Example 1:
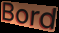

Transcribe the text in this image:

Bord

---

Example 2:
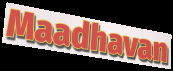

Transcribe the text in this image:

Maadhavan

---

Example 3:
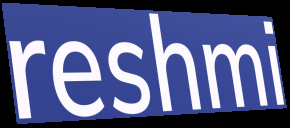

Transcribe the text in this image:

reshmi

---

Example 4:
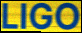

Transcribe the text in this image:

LIGO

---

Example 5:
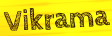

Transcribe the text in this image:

Vikrama